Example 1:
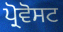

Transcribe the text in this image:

ਪ੍ਰੋਵੋਸਟ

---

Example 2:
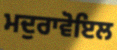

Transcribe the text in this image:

ਮਦੁਰਾਵੋਇਲ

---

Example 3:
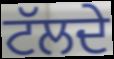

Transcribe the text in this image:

ਟੱਲਦੇ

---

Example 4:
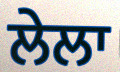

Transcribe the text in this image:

ਲੇਲਾ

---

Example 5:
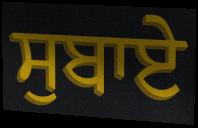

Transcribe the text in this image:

ਸੁਬਾਏ